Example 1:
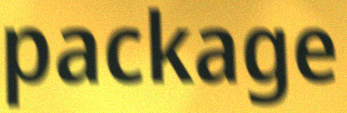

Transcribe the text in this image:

package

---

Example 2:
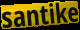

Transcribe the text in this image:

santike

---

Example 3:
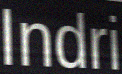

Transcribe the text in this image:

Indri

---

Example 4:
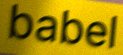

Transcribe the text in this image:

babel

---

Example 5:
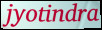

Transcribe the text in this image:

jyotindra